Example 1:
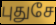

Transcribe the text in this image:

புதுசே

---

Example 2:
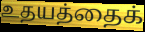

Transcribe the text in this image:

உதயத்தைக்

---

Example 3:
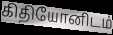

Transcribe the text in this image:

கிதியோனிடம்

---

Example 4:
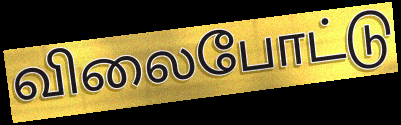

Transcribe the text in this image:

விலைபோட்டு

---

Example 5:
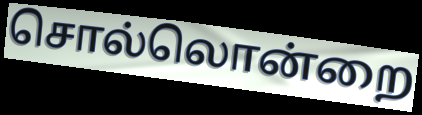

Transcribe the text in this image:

சொல்லொன்றை